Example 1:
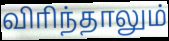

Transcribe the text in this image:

விரிந்தாலும்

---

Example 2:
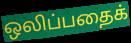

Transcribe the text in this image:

ஒலிப்பதைக்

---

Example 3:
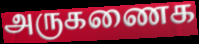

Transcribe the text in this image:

அருகணைக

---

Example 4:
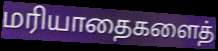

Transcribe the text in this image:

மரியாதைகளைத்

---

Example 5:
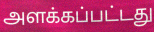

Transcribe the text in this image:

அளக்கப்பட்டது